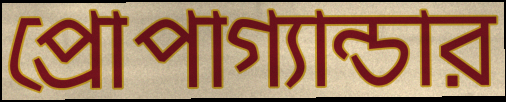
প্রোপাগ্যান্ডার